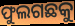
ଫୁଲଗଛକୁ